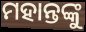
ମହାନ୍ତଙ୍କୁ